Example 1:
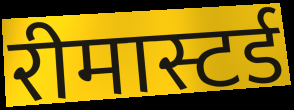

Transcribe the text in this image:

रीमास्टर्ड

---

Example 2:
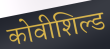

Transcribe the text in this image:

कोवीशिल्ड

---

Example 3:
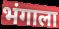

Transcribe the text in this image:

भंगाला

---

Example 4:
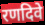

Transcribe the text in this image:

रणदिवे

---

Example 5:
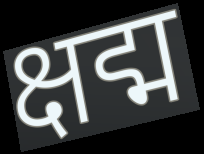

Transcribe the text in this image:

क्षद्म